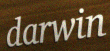
darwin